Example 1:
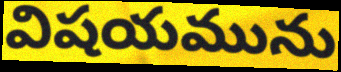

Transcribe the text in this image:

విషయమును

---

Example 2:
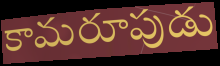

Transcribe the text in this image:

కామరూపుడు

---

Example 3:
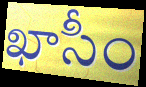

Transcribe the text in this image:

ఖాసీం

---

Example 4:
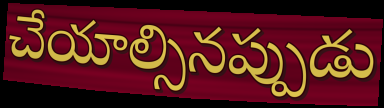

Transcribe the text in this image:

చేయాల్సినప్పుడు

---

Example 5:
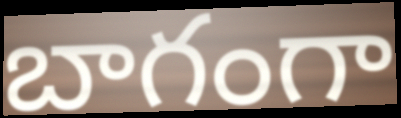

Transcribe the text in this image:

బాగంగా